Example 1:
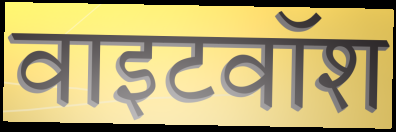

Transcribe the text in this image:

वाइटवॉश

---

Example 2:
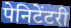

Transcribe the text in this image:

पेनिटेंटरी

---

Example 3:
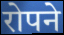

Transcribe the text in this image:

रोपने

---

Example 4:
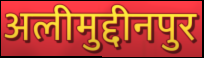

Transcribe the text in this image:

अलीमुद्दीनपुर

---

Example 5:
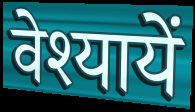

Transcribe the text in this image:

वेश्यायें